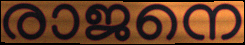
രാജനെ